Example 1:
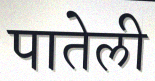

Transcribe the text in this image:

पातेली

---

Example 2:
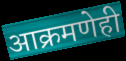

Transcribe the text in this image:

आक्रमणेही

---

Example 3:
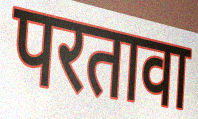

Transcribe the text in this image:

परतावा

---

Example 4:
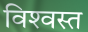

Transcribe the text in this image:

विश्‍वस्त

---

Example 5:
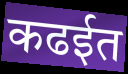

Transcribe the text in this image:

कढईत